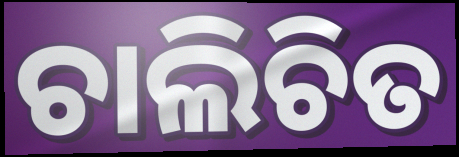
ଚାଲିଚିତ